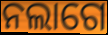
ନଲାଗେ